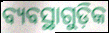
ବ୍ୟବସ୍ଥାଗୁଡ଼ିକ